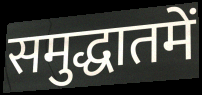
समुद्धातमें